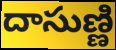
దాసుణ్ణి